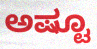
ಅಷ್ಟೂ